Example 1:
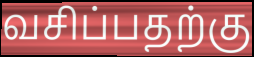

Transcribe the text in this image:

வசிப்பதற்கு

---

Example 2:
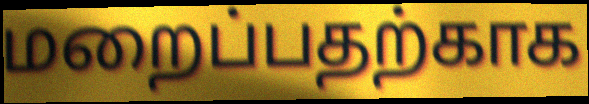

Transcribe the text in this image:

மறைப்பதற்காக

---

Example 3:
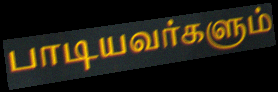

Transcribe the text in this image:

பாடியவர்களும்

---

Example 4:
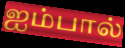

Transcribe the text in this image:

ஐம்பால்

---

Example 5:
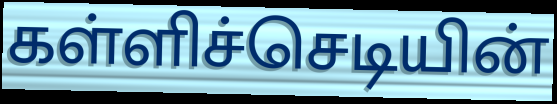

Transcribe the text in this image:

கள்ளிச்செடியின்